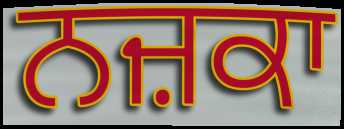
ਨਜ਼ਕਾ